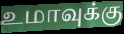
உமாவுக்கு